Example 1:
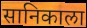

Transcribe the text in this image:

सानिकाला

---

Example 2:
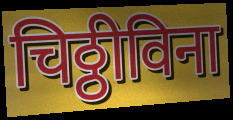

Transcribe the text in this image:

चिठ्ठीविना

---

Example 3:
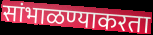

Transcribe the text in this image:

सांभाळण्याकरता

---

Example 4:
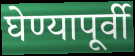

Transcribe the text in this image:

घेण्यापूर्वी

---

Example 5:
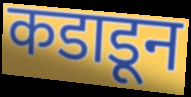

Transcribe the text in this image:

कडाडून